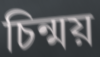
চিন্ময়